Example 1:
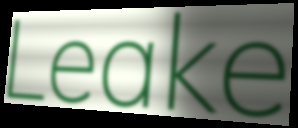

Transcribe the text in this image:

Leake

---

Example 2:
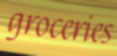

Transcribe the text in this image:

groceries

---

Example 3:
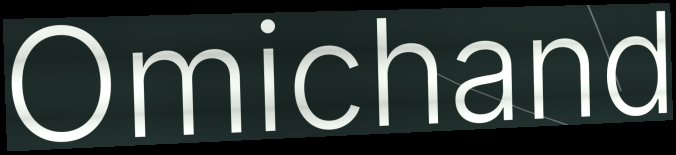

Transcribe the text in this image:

Omichand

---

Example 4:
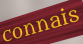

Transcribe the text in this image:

connais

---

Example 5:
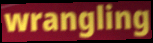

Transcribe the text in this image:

wrangling